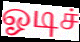
ஓடிச்